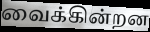
வைக்கின்றன